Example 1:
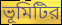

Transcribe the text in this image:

ভূমিটির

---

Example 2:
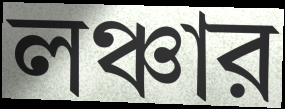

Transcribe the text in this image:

লঞ্চার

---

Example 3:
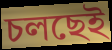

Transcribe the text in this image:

চলছেই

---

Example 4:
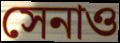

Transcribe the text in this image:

সেনাও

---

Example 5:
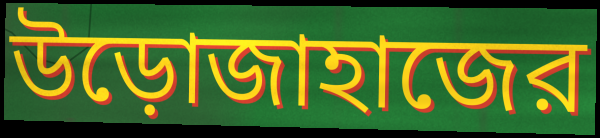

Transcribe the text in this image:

উড়োজাহাজের